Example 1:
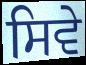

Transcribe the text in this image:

ਸਿਵੇ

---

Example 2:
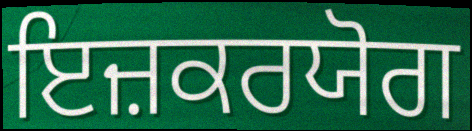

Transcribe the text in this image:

ਇਜ਼ਕਰਯੋਗ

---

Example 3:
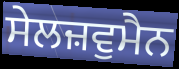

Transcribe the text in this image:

ਸੇਲਜ਼ਵੁਮੈਨ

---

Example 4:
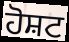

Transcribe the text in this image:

ਹੋਸ਼ਟ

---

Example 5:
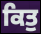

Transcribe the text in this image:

ਕਿਤੁ